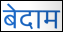
बेदाम